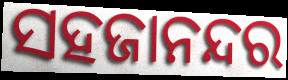
ସହଜାନନ୍ଦର